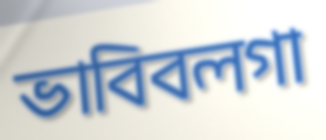
ভাবিবলগা